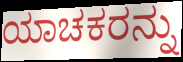
ಯಾಚಕರನ್ನು